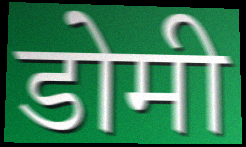
डोमी